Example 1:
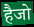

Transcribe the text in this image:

हैजो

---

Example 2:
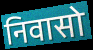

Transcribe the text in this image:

निवासो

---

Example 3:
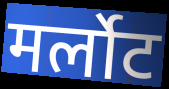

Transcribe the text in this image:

मर्लोट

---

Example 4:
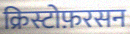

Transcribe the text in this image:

क्रिस्टोफ़रसन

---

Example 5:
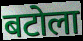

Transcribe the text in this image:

बटोला